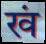
खं